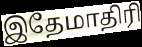
இதேமாதிரி